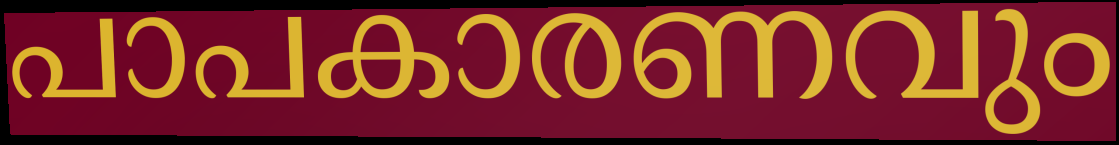
പാപകാരണവും